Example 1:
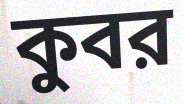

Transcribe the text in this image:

কুবর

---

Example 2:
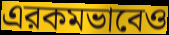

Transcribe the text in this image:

এরকমভাবেও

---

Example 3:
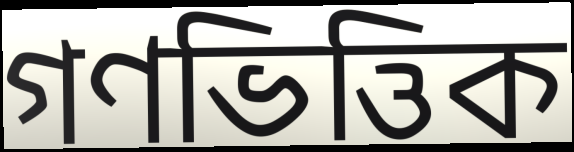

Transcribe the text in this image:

গণভিত্তিক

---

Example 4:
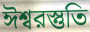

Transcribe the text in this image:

ঈশ্বরস্তুতি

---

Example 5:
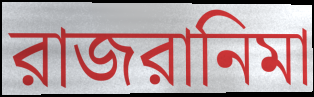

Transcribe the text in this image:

রাজরানিমা